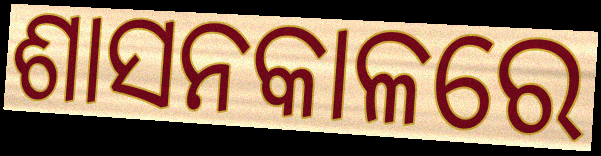
ଶାସନକାଳରେ